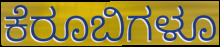
ಕೆರೂಬಿಗಳೂ